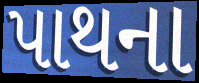
પાથના